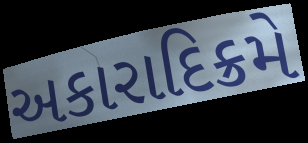
અકારાદિક્રમે